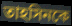
তাহসিনকে